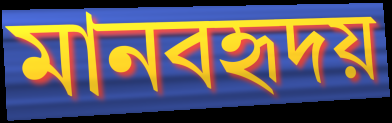
মানবহৃদয়